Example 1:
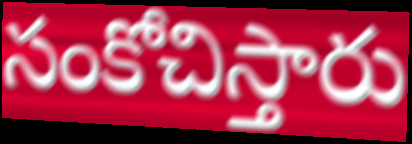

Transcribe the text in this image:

సంకోచిస్తారు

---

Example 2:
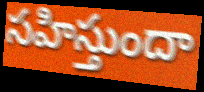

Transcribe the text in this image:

సహిస్తుందా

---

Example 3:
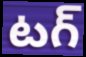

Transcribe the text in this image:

టగ్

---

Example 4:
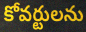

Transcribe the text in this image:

కోవర్టులను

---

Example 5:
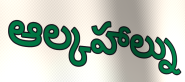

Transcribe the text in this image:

ఆల్కహాల్ను